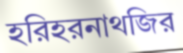
হরিহরনাথজির